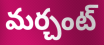
మర్చంట్